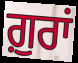
ਗ਼ੁਰਾਂ